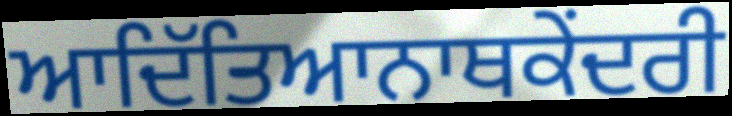
ਆਦਿੱਤਿਆਨਾਥਕੇਂਦਰੀ